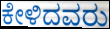
ಕೇಳಿದವರು